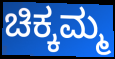
ಚಿಕ್ಕಮ್ಮ